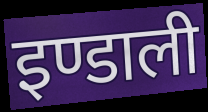
इण्डाली